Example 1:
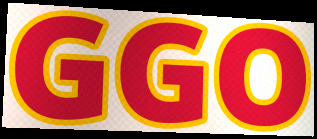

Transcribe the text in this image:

GGO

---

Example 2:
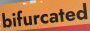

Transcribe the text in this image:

bifurcated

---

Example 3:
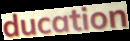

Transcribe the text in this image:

ducation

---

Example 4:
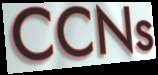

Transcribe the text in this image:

CCNs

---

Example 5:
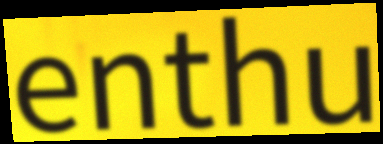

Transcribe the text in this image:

enthu